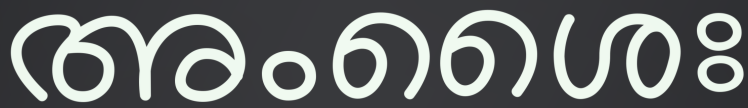
അംശൈഃ